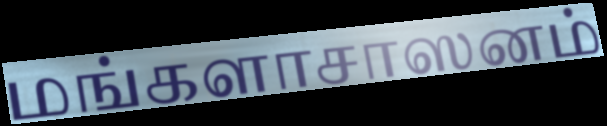
மங்களாசாஸனம்